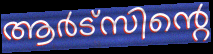
ആർട്സിന്റെ